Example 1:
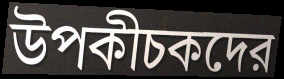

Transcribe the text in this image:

উপকীচকদের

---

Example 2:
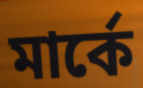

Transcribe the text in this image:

মার্কে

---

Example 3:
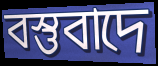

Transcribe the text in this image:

বস্তুবাদে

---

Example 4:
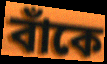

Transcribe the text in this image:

বাঁকে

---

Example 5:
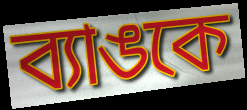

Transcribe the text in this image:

ব্যাঙকে